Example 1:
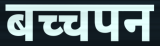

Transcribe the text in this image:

बच्चपन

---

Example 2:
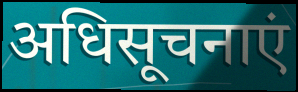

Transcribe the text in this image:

अधिसूचनाएं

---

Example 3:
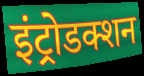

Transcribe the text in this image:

इंट्रोडक्शन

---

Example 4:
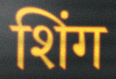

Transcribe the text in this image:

शिंग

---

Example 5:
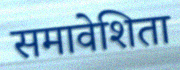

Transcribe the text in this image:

समावेशिता